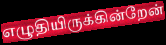
எழுதியிருக்கின்றேன்